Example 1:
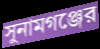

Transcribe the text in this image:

সুনামগঞ্জের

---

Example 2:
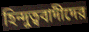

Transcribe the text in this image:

হিন্দুত্ববাদীদের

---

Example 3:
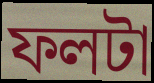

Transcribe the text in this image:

ফলটা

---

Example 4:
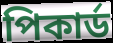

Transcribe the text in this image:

পিকার্ড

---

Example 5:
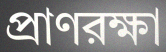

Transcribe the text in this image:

প্রাণরক্ষা